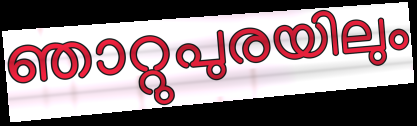
ഞാറ്റുപുരയിലും